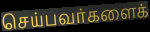
செய்பவர்களைக்